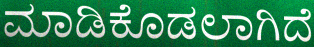
ಮಾಡಿಕೊಡಲಾಗಿದೆ